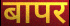
बापर